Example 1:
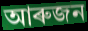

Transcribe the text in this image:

আৰুজন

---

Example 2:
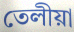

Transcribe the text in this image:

তেলীয়া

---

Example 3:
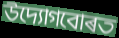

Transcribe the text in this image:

উদ্যোগবোৰত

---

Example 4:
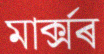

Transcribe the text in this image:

মাৰ্ক্সৰ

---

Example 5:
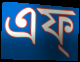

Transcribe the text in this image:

এফ্